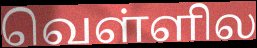
வெள்ளில